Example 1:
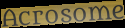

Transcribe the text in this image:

Acrosome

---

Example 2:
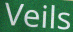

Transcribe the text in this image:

Veils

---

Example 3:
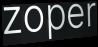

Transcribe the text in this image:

zoper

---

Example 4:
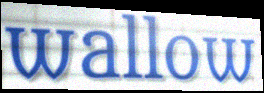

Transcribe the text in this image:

wallow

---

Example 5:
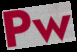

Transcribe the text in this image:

Pw